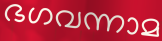
ഭഗവന്നാമ